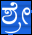
ಶ್ರೇ